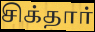
சிக்தார்